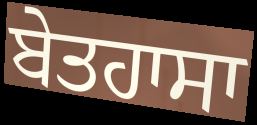
ਬੇਤਹਾਸਾ